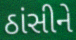
ઠાંસીને